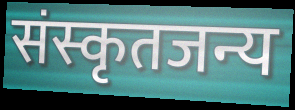
संस्कृतजन्य